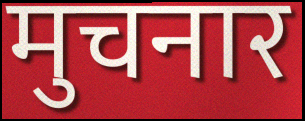
मुचनार